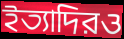
ইত্যাদিরও